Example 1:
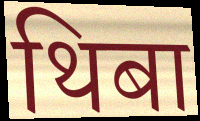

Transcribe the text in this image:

थिबा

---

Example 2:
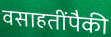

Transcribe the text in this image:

वसाहतींपैकी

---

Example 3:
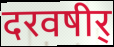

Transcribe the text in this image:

दरवषीर्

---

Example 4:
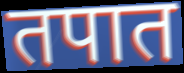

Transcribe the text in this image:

तपात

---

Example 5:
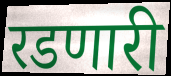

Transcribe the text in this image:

रडणारी